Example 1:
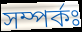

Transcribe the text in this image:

সম্পৰ্কঃ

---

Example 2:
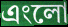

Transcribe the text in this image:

এংলো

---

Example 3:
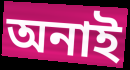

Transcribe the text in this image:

অনাই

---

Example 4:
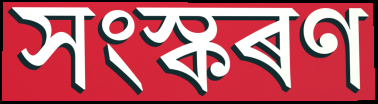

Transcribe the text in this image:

সংস্কৰণ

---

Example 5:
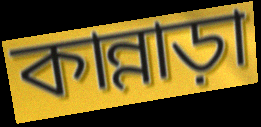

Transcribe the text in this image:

কান্নাড়া